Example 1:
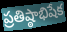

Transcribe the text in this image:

ప్రతిష్ఠాభిషేక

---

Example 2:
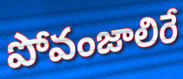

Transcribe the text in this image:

పోవంజాలిరే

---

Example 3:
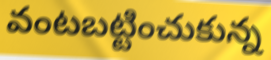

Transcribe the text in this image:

వంటబట్టించుకున్న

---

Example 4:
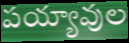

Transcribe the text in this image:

పయ్యావుల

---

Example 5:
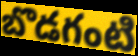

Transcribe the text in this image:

బొడగంటి